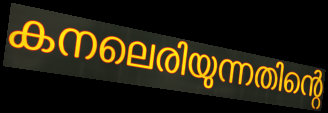
കനലെരിയുന്നതിന്റെ